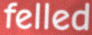
felled